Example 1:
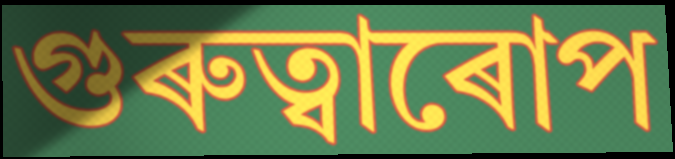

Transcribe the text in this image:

গুৰুত্বাৰোপ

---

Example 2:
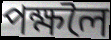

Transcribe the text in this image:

পক্ষলৈ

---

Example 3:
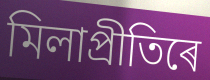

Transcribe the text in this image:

মিলাপ্ৰীতিৰে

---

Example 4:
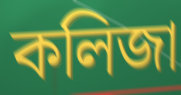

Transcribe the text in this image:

কলিজা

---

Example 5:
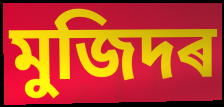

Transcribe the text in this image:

মুজিদৰ